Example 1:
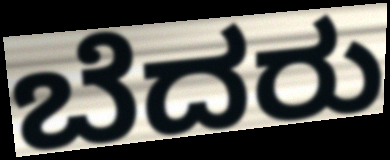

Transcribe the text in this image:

ಬೆದರು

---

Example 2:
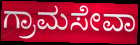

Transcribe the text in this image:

ಗ್ರಾಮಸೇವಾ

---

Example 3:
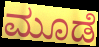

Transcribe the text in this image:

ಮೂಡೆ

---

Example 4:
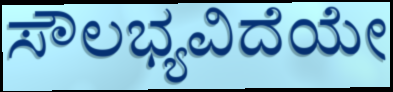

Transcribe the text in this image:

ಸೌಲಭ್ಯವಿದೆಯೇ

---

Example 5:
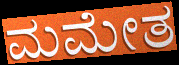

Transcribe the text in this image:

ಮಮೇತ